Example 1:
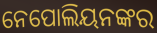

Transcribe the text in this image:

ନେପୋଲିୟନଙ୍କର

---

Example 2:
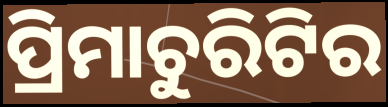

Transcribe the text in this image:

ପ୍ରିମାଚୁରିଟିର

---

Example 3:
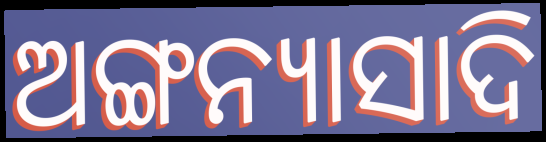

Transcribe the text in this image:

ଅଙ୍ଗନ୍ୟାସାଦି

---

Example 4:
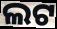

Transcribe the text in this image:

ଲଟ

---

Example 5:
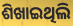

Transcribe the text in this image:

ଶିଖାଇଥିଲି